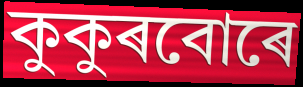
কুকুৰবোৰে